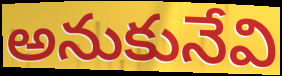
అనుకునేవి